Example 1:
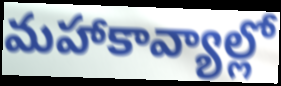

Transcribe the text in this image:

మహాకావ్యాల్లో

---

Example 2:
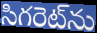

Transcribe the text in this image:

సిగరెట్‌ను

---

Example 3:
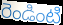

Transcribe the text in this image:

రెండింటి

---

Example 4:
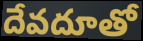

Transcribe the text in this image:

దేవదూతో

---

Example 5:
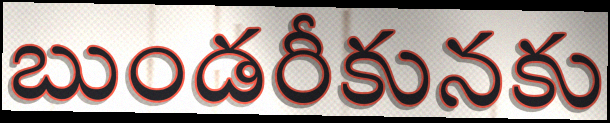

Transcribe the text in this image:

బుండరీకునకు